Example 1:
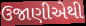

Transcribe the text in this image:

ઉજાણીએથી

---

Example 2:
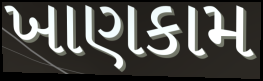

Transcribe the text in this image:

ખાણકામ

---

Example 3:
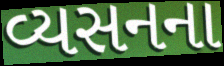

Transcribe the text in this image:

વ્યસનના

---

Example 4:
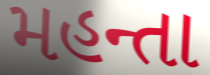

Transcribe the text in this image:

મહન્તા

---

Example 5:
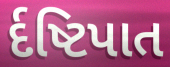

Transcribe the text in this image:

ર્દષ્ટિપાત